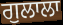
ਗੁਲਾਲਾ